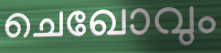
ചെഖോവും